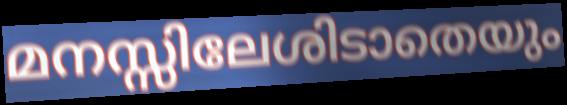
മനസ്സിലേശിടാതെയും